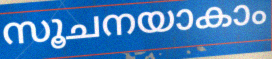
സൂചനയാകാം